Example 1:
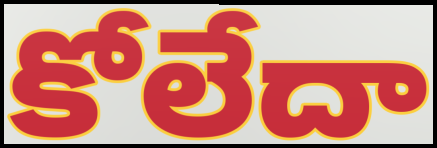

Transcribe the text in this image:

కోలేదా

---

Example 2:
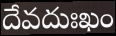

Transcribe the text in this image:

దేవదుఃఖం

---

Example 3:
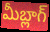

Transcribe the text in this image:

మీబ్లాగ్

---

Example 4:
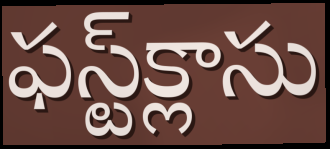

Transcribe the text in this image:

ఫస్ట్‌క్లాసు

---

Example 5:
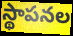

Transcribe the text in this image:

స్థాపనల